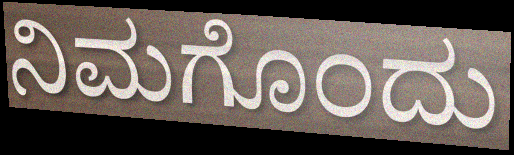
ನಿಮಗೊಂದು